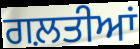
ਗਲ਼ਤੀਆਂ